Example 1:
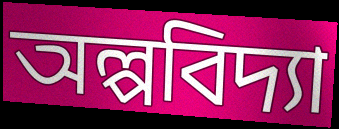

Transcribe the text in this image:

অল্পবিদ্যা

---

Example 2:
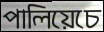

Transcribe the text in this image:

পালিয়েচে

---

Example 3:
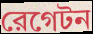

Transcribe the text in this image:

রেগেটন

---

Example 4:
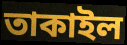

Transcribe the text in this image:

তাকাইল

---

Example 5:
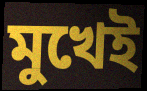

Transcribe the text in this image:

মুখেই